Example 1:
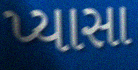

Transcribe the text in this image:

પ્યાસા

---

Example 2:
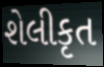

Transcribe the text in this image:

શેલીકૃત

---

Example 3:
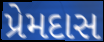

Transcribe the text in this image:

પ્રેમદાસ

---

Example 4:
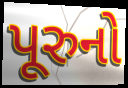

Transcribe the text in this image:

પૂરુનો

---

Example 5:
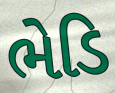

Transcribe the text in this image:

ભેડિ